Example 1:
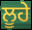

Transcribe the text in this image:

ਲੂਹੇ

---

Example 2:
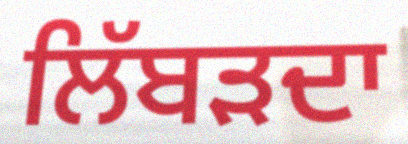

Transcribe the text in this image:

ਲਿੱਬੜਦਾ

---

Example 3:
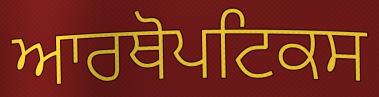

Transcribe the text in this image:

ਆਰਥੋਪਟਿਕਸ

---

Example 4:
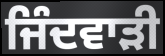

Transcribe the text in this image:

ਜਿੰਦਵਾੜੀ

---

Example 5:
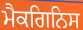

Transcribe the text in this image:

ਮੈਕਗਿਨਿਸ